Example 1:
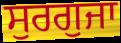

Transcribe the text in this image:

ਸੁਰਗੁਜਾ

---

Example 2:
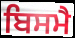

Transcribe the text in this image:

ਬਿਸਮੈ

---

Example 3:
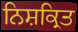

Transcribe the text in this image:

ਨਿਸ਼ਕ੍ਰਿਤ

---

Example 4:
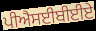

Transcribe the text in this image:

ਪੀਐਸਈਬੀਈਏ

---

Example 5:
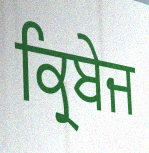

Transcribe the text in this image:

ਕ੍ਰਿਬੇਜ